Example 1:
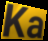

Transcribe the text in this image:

Ka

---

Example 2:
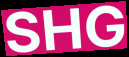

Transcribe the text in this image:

SHG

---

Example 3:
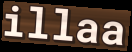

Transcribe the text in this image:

illaa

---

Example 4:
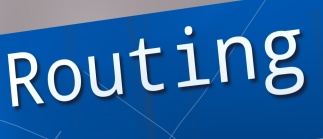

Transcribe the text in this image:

Routing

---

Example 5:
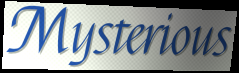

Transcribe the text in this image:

Mysterious